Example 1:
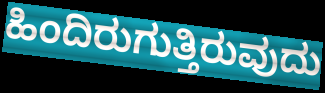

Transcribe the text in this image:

ಹಿಂದಿರುಗುತ್ತಿರುವುದು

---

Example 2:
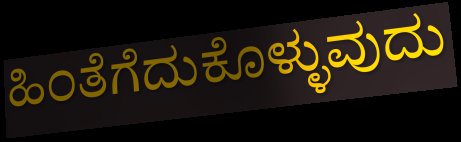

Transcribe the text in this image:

ಹಿಂತೆಗೆದುಕೊಳ್ಳುವುದು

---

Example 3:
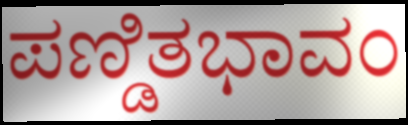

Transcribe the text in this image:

ಪಣ್ಡಿತಭಾವಂ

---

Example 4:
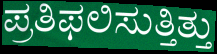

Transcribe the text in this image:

ಪ್ರತಿಫಲಿಸುತ್ತಿತ್ತು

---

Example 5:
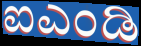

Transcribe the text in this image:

ಐಎಂಡಿ